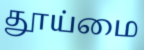
தூய்மை